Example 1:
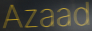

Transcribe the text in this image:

Azaad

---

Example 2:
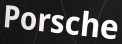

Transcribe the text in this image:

Porsche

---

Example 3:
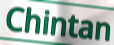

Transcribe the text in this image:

Chintan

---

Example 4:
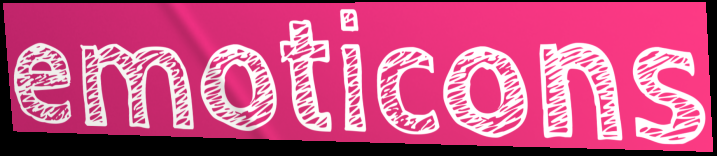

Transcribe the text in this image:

emoticons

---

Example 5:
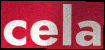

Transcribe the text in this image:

cela